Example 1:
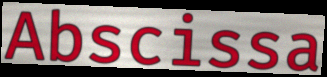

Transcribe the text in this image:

Abscissa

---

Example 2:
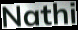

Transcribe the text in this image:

Nathi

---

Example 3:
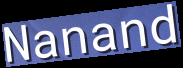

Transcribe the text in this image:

Nanand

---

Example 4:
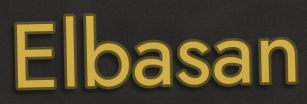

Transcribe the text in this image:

Elbasan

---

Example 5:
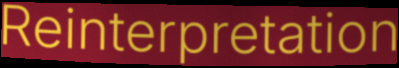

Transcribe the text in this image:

Reinterpretation